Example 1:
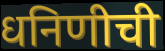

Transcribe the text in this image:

धनिणीची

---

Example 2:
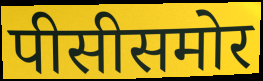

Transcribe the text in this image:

पीसीसमोर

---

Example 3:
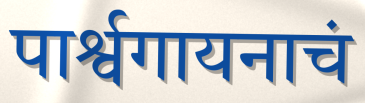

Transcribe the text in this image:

पार्श्वगायनाचं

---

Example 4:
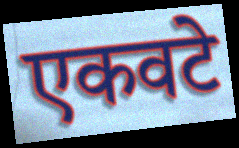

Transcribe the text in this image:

एकवटे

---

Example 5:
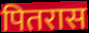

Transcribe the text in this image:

पितरास